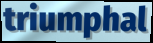
triumphal